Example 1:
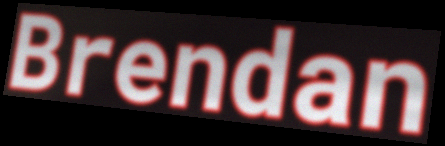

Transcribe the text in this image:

Brendan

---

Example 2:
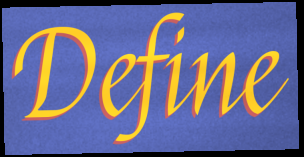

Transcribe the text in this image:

Define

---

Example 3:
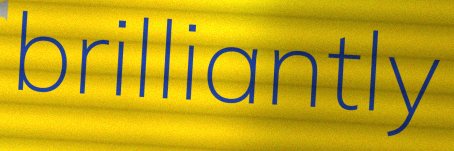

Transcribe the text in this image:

brilliantly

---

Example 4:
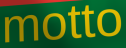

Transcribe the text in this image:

motto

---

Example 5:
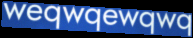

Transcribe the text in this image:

weqwqewqwq